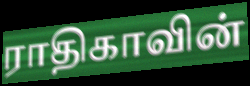
ராதிகாவின்